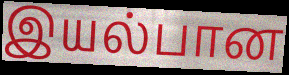
இயல்பான